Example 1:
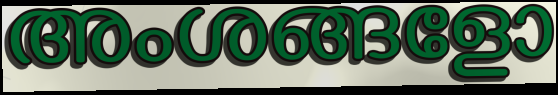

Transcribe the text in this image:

അംശങ്ങളോ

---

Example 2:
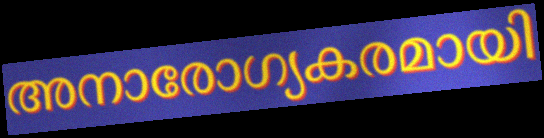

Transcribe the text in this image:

അനാരോഗ്യകരമായി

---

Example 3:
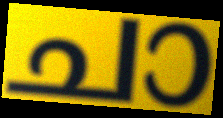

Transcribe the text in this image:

ചാ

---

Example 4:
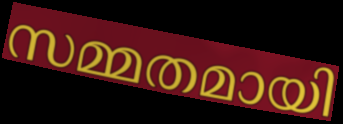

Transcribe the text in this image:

സമ്മതമായി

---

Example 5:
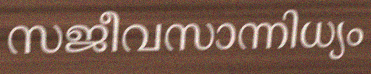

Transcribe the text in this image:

സജീവസാന്നിധ്യം